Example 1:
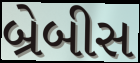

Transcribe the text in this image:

બ્રેબીસ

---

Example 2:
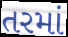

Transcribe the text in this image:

તરમાં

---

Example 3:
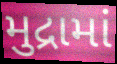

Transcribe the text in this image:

મુદ્રામાં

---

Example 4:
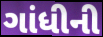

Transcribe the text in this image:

ગાંધીની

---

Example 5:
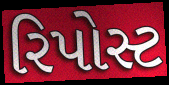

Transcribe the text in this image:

રિપોસ્ટ